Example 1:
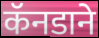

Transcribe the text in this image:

कॅनडाने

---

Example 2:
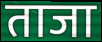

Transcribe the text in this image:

ताजा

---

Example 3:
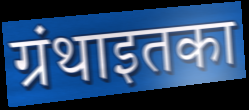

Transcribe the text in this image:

ग्रंथाइतका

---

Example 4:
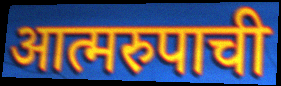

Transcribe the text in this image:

आत्मरुपाची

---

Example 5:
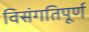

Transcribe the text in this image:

विसंगतिपूर्ण